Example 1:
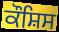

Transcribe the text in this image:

ਕੌਸ਼ਿਸ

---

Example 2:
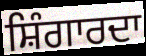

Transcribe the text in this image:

ਸ਼ਿੰਗਾਰਦਾ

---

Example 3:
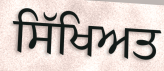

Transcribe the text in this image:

ਸਿੱਖਿਅਤ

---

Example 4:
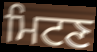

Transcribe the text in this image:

ਮਿਟਣ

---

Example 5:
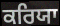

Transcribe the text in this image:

ਕਰਿਯਾ